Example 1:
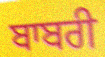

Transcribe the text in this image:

ਬਾਬਰੀ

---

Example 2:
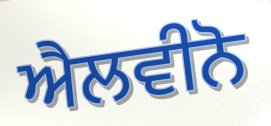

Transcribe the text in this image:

ਐਲਵੀਨੋ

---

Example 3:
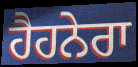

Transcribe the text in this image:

ਹੈਹਨੇਰਾ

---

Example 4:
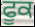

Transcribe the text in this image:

ਫੂਕ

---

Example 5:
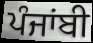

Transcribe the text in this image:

ਪੰਜਾਂਬੀ